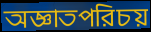
অজ্ঞাতপরিচয়